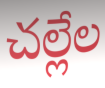
చల్లేల